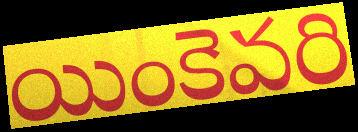
యింకెవరి